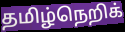
தமிழ்நெறிக்